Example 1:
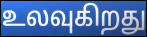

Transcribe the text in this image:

உலவுகிறது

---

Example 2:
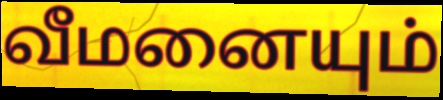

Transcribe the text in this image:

வீமனையும்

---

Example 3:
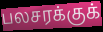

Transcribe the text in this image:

பலசரக்குக்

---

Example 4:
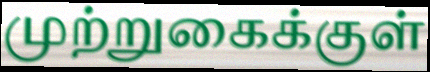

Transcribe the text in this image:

முற்றுகைக்குள்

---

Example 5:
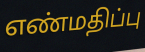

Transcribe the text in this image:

எண்மதிப்பு